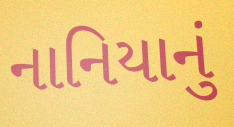
નાનિયાનું